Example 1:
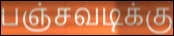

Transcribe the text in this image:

பஞ்சவடிக்கு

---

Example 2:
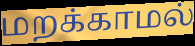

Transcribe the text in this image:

மறக்காமல்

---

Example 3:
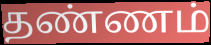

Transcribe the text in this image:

தண்ணம்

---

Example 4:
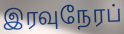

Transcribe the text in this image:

இரவுநேரப்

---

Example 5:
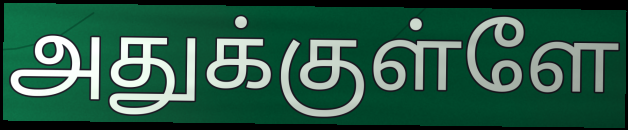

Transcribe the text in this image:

அதுக்குள்ளே